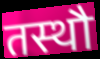
तस्थौ